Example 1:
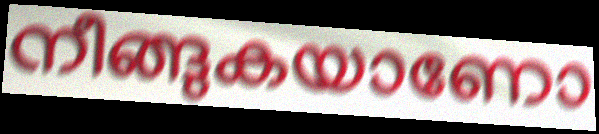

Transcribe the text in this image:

നീങ്ങുകയാണോ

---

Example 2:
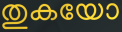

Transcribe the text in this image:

തുകയോ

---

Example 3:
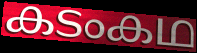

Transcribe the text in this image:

കടംകഥ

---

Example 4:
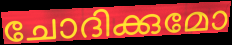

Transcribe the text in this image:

ചോദിക്കുമോ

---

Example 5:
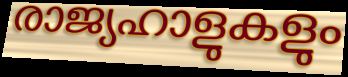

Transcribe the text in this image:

രാജ്യഹാളുകളും